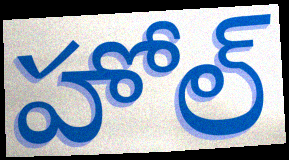
హోల్